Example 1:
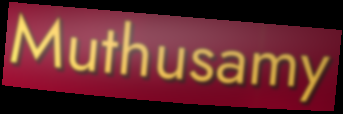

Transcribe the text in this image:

Muthusamy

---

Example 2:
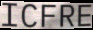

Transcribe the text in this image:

ICFRE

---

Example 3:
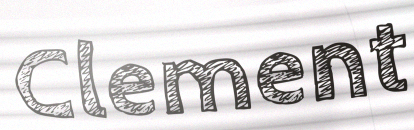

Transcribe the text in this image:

Clement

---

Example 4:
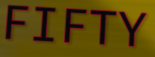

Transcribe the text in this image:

FIFTY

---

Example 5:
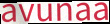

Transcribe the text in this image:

avunaa